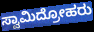
ಸ್ವಾಮಿದ್ರೋಹರು